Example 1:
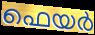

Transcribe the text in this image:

ഫെയർ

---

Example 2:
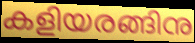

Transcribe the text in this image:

കളിയരങ്ങിനു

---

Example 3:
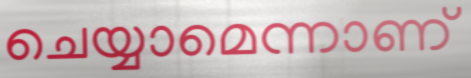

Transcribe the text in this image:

ചെയ്യാമെന്നാണ്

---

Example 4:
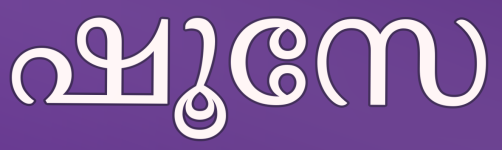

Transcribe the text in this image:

ഷൂസേ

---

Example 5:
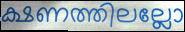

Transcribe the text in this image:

ക്ഷണത്തിലല്ലോ